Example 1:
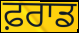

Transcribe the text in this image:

ਫ਼ਰਾਡ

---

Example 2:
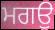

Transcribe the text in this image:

ਮਗਉ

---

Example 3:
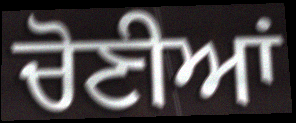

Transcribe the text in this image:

ਚੋਣੀਆਂ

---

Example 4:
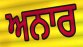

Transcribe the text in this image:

ਅਨਾਰ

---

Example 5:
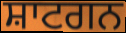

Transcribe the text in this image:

ਸ਼ਾਟਗਨ